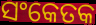
ସଂକେତକ